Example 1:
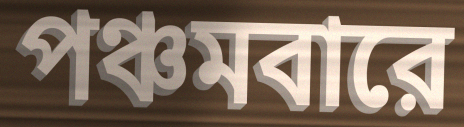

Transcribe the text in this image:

পঞ্চমবারে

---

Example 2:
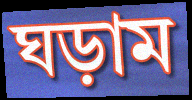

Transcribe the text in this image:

ঘড়াম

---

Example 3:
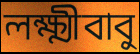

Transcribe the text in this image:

লক্ষ্মীবাবু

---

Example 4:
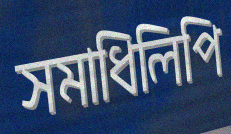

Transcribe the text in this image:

সমাধিলিপি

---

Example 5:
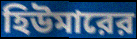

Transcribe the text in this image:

হিউমারের